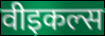
वीइकल्स